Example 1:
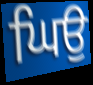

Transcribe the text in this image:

ਘਿਉ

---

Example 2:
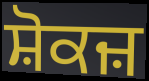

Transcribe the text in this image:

ਸ਼ੋਕਜ਼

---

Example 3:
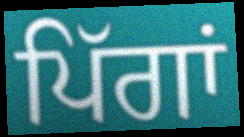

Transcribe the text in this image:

ਪਿੱਗਾਂ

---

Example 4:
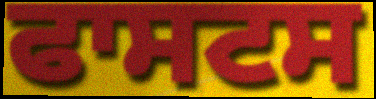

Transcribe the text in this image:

ਫਾਸਟਸ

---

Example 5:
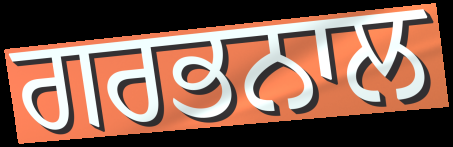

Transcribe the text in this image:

ਗਰਭਨਾਲ